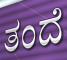
ತಂದೆ